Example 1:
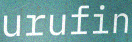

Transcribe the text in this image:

urufin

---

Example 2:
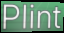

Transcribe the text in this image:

Plint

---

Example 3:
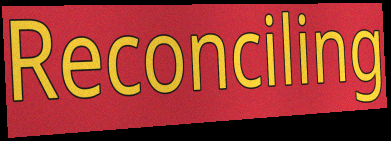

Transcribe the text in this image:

Reconciling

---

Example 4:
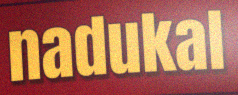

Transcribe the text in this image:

nadukal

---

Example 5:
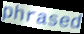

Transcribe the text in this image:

phrased